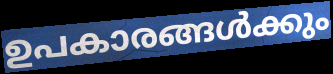
ഉപകാരങ്ങൾക്കും